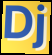
Dj